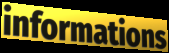
informations